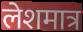
लेशमात्र